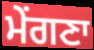
ਮੇਂਗਣਾ